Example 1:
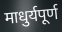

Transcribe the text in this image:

माधुर्यपूर्ण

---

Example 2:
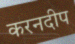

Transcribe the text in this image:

करनदीप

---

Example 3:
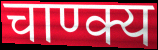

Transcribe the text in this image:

चाण्क्य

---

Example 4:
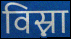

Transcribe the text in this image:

विस्ना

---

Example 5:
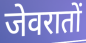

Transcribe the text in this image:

जेवरातों